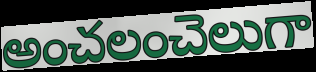
అంచలంచెలుగా